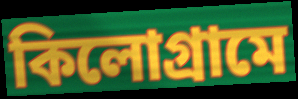
কিলোগ্রামে